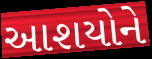
આશયોને